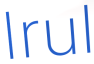
Irul